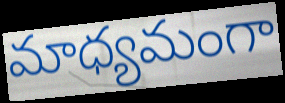
మాధ్యమంగా